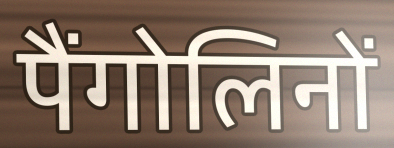
पैंगोलिनों